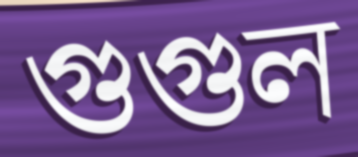
গুগুল